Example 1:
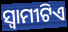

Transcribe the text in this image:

ସ୍ୱାମୀଟିଏ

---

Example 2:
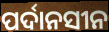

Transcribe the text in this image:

ପର୍ଦାନସୀନ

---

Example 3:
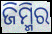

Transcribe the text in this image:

ଜିମ୍ମିର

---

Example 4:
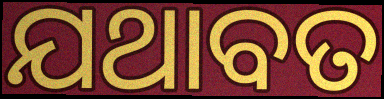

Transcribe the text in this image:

ଯଥାବତ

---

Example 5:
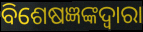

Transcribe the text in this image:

ବିଶେଷଜ୍ଞଙ୍କଦ୍ୱାରା